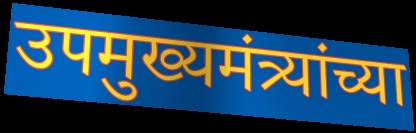
उपमुख्यमंत्र्यांच्या